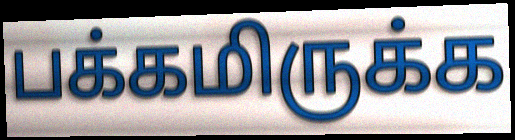
பக்கமிருக்க